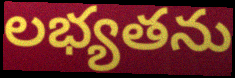
లభ్యతను